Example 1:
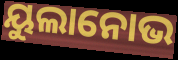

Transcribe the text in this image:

ୟୁଲାନୋଭ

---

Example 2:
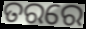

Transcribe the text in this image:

ତରରେ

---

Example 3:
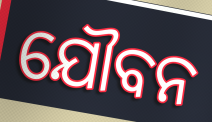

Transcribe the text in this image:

ଯୌବନ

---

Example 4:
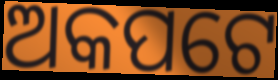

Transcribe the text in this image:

ଅକପଟେ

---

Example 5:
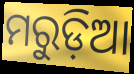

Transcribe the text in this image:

ମରୁଡ଼ିଆ